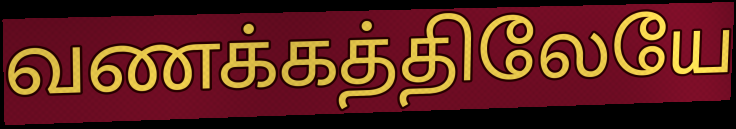
வணக்கத்திலேயே